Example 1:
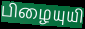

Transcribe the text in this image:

பிழையுயி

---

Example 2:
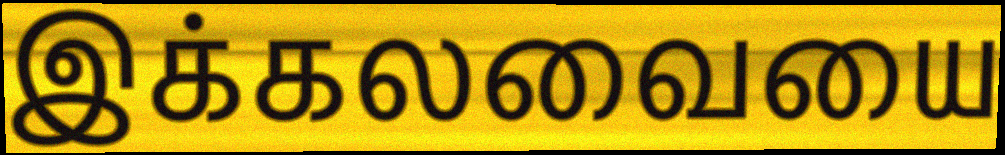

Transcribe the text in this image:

இக்கலவையை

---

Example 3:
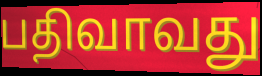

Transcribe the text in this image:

பதிவாவது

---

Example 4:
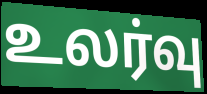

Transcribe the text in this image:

உலர்வு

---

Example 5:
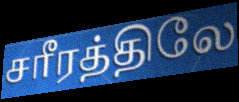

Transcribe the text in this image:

சரீரத்திலே